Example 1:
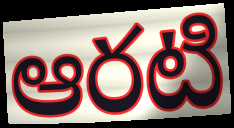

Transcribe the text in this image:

ఆరటి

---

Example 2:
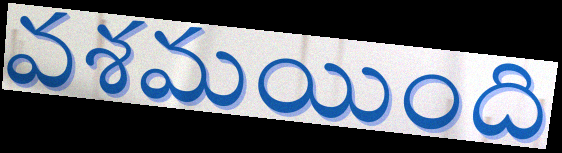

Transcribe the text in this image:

వశమయింది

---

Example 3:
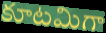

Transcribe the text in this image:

కూటమిగా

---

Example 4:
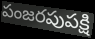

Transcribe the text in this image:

పంజరపుపక్షి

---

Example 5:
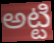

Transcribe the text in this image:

అట్టి